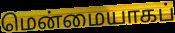
மென்மையாகப்